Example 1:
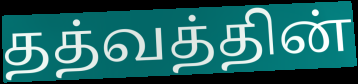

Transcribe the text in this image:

தத்வத்தின்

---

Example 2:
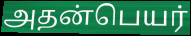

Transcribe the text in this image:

அதன்பெயர்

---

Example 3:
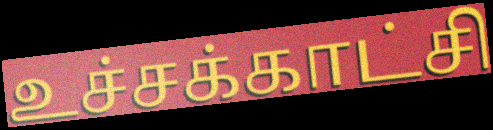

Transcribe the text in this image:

உச்சக்காட்சி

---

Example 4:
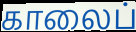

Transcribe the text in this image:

காலைப்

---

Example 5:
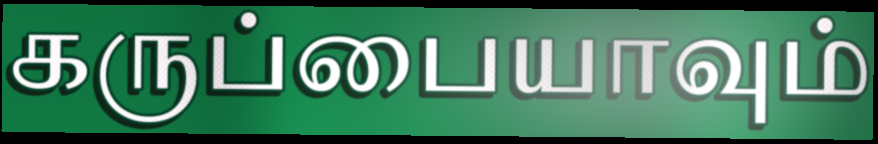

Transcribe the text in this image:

கருப்பையாவும்